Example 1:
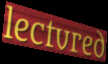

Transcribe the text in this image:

lectured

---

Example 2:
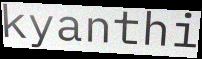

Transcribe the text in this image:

kyanthi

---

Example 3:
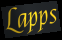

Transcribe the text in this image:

Lapps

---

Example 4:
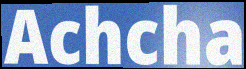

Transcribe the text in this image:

Achcha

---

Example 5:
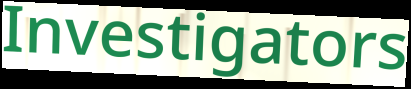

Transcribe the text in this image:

Investigators